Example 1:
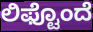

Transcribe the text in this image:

ಲಿಫ್ಟೊಂದೆ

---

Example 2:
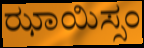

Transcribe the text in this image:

ಝಾಯಿಸ್ಸಂ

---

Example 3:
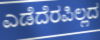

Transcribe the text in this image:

ಎಡೆದೆರಪಿಲ್ಲದ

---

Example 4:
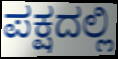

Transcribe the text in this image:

ಪಕ್ಷದಲ್ಲಿ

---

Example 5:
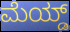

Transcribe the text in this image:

ಮೆಯ್ಡ್